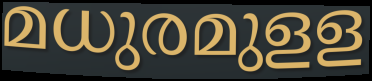
മധുരമുളള